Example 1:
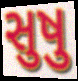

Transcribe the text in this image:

સુષુ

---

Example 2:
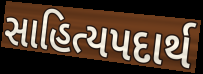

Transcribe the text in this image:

સાહિત્યપદાર્થ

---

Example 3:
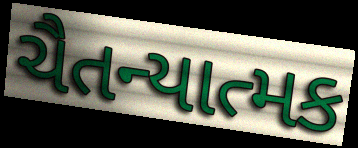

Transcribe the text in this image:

ચૈતન્યાત્મક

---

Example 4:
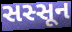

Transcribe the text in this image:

સસ્સૂન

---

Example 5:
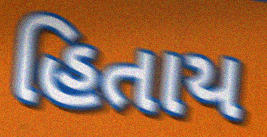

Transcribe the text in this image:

હિતાય